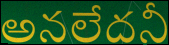
అనలేదనీ